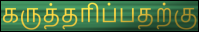
கருத்தரிப்பதற்கு